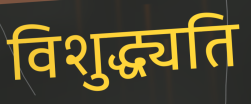
विशुद्ध्यति